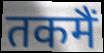
तकमैं